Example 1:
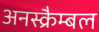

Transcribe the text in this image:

अनस्क्रैम्बल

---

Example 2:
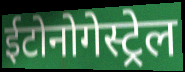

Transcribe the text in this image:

ईटोनोगेस्ट्रेल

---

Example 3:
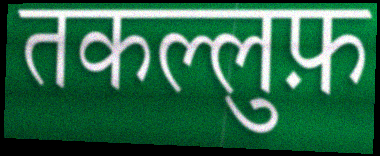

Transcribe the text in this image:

तकल्लुफ़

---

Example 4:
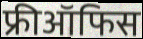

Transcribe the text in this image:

फ्रीऑफिस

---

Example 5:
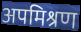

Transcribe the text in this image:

अपमिश्रण